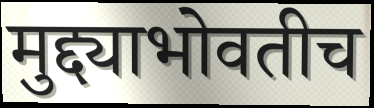
मुद्द्याभोवतीच